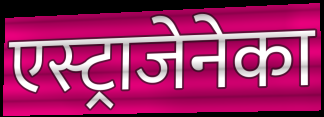
एस्‍ट्राजेनेका